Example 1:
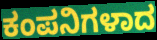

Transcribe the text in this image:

ಕಂಪನಿಗಳಾದ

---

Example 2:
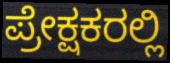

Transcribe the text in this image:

ಪ್ರೇಕ್ಷಕರಲ್ಲಿ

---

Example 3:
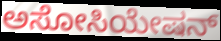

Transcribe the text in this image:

ಅಸೋಸಿಯೇಷನ್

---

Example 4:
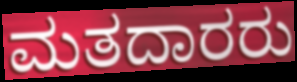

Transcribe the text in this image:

ಮತದಾರರು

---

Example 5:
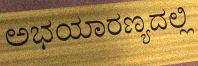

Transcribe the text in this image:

ಅಭಯಾರಣ್ಯದಲ್ಲಿ